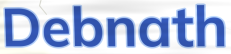
Debnath